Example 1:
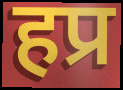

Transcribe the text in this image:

हप्र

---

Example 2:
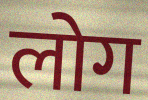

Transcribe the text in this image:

लोग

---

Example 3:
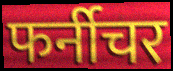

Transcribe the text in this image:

फर्नीचर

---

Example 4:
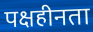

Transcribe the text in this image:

पक्षहीनता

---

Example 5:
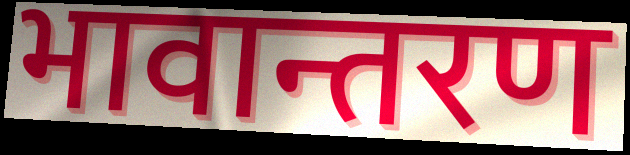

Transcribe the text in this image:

भावान्तरण